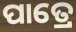
ପାତ୍ରେ